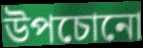
উপচোনো